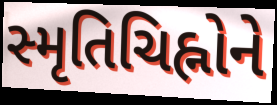
સ્મૃતિચિહ્નોને